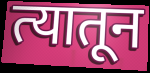
त्‍यातून